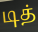
டித்